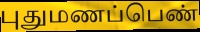
புதுமணப்பெண்